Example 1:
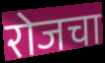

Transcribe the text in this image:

रोजचा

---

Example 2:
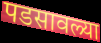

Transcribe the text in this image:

पडसावल्या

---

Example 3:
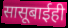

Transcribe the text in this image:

सासूबाईही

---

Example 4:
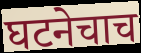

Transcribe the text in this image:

घटनेचाच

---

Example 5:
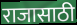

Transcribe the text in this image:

राजासाठी